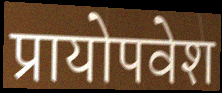
प्रायोपवेश